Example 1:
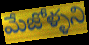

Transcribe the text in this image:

మేజోళ్ళని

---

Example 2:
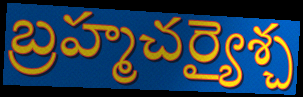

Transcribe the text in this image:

బ్రహ్మచర్యైశ్చ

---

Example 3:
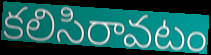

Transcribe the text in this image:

కలిసిరావటం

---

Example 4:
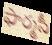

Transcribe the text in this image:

ఫార్మసీ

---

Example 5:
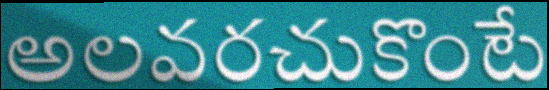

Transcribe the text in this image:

అలవరచుకొంటే